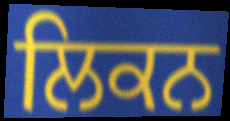
ਲਿਕਨ